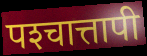
पश्‍चात्तापी